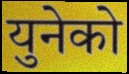
युनेको